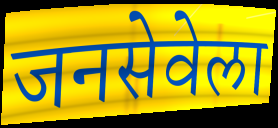
जनसेवेला